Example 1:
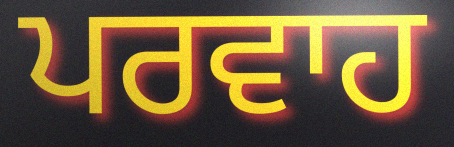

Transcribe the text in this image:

ਪਰਵਾਹ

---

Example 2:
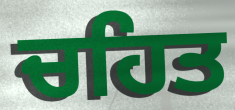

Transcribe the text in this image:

ਚਹਿਤ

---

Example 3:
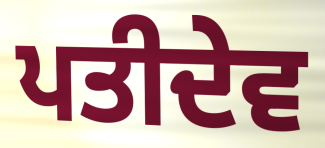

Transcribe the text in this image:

ਪਤੀਦੇਵ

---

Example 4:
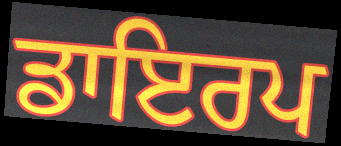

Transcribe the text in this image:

ਡਾਇਰਪ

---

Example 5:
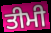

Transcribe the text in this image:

ਤੀਮੀ